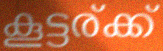
കൂട്ടര്ക്ക്